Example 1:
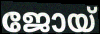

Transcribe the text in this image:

ജോയ്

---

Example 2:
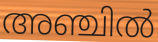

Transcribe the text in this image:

അഞ്ചിൽ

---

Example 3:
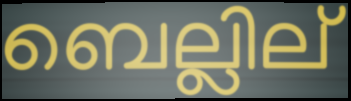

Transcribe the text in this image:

ബെല്ലില്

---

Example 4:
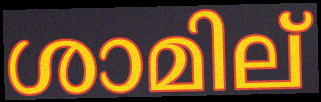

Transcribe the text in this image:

ശാമില്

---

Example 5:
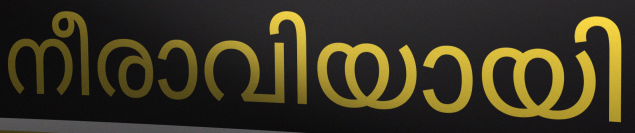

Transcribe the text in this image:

നീരാവിയായി